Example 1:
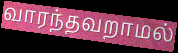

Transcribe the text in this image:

வாரந்தவறாமல்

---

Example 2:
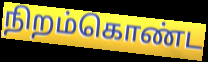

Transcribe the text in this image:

நிறம்கொண்ட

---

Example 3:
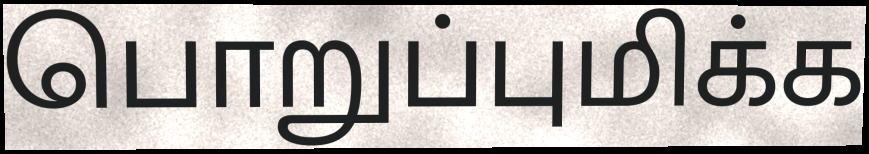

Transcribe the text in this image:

பொறுப்புமிக்க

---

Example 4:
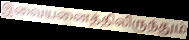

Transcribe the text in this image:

இவையனைத்திலிருந்தும்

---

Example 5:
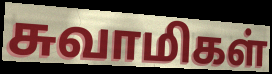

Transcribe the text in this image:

சுவாமிகள்